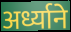
अर्ध्याने